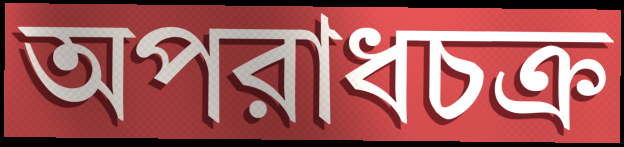
অপরাধচক্র